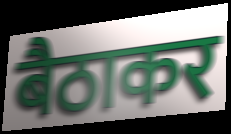
बैठाकर